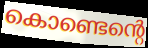
കൊണ്ടെന്റെ